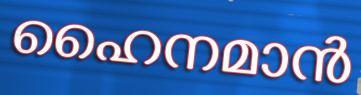
ഹൈനമാൻ